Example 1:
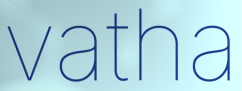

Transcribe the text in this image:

vatha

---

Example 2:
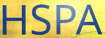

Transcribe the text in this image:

HSPA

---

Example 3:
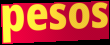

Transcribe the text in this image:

pesos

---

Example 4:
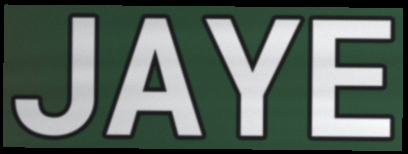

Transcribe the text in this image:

JAYE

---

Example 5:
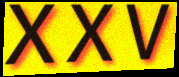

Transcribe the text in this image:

xxv